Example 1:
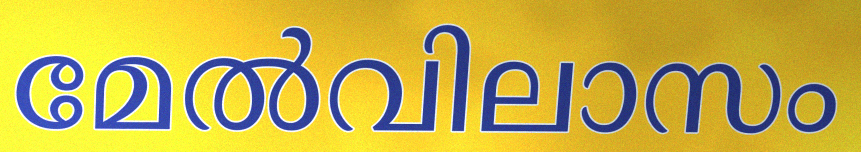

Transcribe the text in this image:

മേൽവിലാസം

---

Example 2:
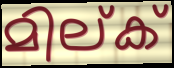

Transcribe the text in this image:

മില്ക്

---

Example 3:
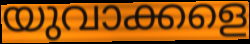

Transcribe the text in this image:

യുവാക്കളെ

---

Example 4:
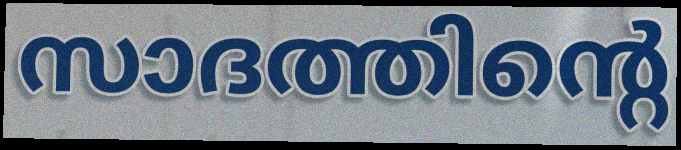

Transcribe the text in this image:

സാദത്തിന്റെ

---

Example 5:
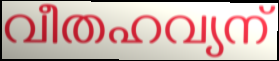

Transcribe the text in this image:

വീതഹവ്യന്